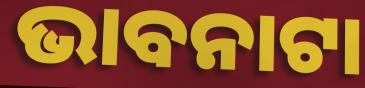
ଭାବନାଟା